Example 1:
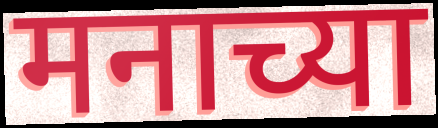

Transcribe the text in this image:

मनाच्या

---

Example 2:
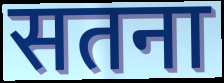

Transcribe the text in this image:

सतना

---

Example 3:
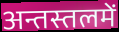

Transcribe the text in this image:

अन्तस्तलमें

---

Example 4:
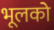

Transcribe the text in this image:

भूलको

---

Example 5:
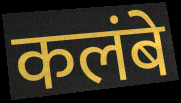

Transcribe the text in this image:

कलंबे